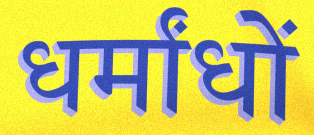
धर्मांधों